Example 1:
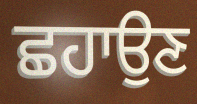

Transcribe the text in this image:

ਛਹਾਉਣ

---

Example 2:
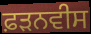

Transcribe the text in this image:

ਫ਼ੜਨਵੀਸ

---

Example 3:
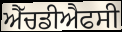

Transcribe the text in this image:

ਐੱਚਡੀਐਫਸੀ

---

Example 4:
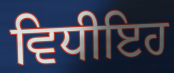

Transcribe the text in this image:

ਵਿਧੀਇਹ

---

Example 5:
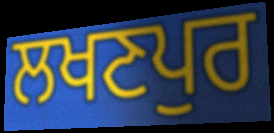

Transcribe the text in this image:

ਲਖਣਪੁਰ